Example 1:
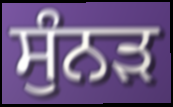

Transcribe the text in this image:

ਸੁੰਨੜ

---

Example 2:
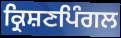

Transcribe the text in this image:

ਕ੍ਰਿਸ਼ਣਪਿੰਗਲ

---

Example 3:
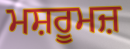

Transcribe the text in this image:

ਮਸ਼ਰੂਮਜ਼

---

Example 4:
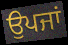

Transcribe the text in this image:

ਉਪਜਾਂ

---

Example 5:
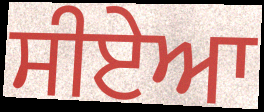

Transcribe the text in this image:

ਸੀਏਆ